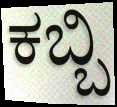
ಕಬ್ಬಿ